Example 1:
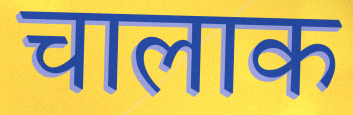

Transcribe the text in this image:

चालाक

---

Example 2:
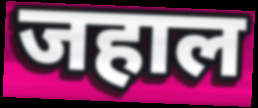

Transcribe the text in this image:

जहाल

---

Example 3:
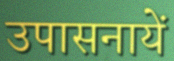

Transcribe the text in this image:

उपासनायें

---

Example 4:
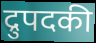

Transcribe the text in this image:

द्रुपदकी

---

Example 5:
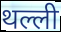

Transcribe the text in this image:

थल्ली